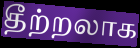
தீற்றலாக